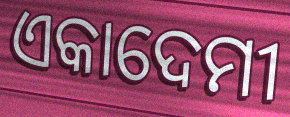
ଏକାଦେମୀ